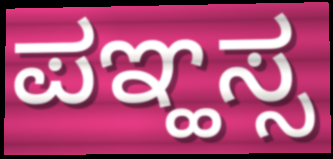
ಪಞ್ಹಸ್ಸ